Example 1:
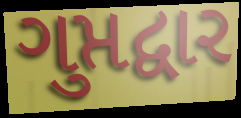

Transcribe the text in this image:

ગુપ્તદ્વાર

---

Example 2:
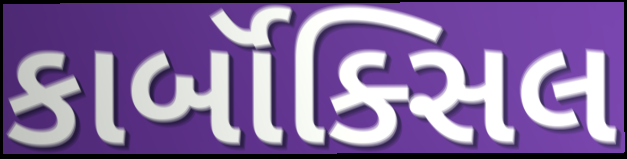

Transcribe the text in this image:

કાર્બૉક્સિલ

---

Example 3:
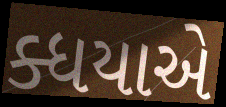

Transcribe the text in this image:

ક્ધયાએ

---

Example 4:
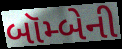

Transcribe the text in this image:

બૉમ્બેની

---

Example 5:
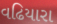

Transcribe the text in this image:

વઢિયારા